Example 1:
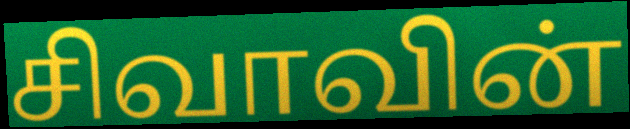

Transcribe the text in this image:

சிவாவின்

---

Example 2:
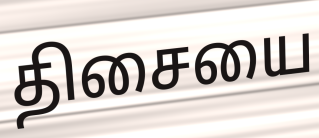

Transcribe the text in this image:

திசையை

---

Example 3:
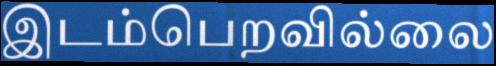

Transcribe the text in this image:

இடம்பெறவில்லை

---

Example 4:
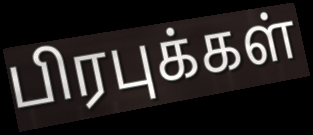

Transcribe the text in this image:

பிரபுக்கள்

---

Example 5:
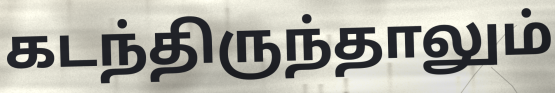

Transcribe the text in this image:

கடந்திருந்தாலும்